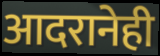
आदरानेही